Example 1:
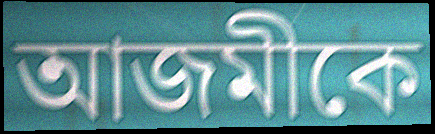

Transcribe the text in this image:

আজমীকে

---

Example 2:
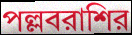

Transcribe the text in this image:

পল্লবরাশির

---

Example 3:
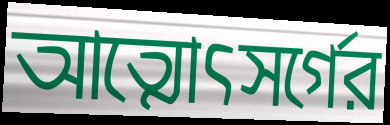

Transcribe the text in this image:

আত্মোৎসর্গের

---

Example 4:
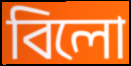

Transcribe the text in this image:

বিলো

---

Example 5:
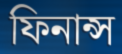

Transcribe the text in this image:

ফিনান্স